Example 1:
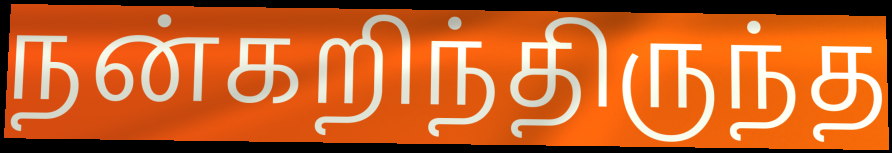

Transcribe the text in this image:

நன்கறிந்திருந்த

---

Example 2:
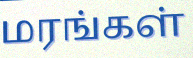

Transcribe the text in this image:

மரங்கள்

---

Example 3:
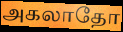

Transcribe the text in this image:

அகலாதோ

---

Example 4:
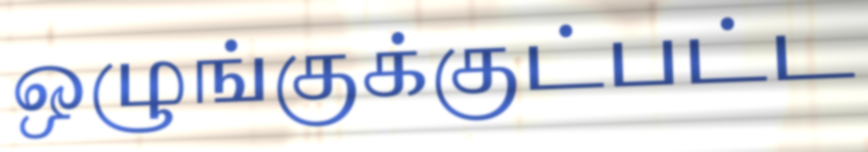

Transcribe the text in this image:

ஒழுங்குக்குட்பட்ட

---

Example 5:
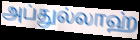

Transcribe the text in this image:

அப்துல்லாஹ்